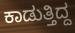
ಕಾಡುತ್ತಿದ್ದ